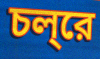
চল্‌রে